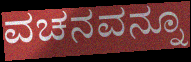
ವಚನವನ್ನೂ